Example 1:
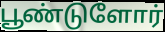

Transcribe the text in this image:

பூண்டுளோர்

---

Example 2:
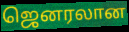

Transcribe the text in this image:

ஜெனரலான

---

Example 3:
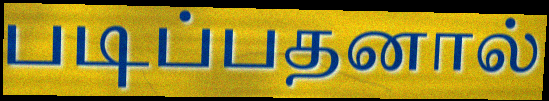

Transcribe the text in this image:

படிப்பதனால்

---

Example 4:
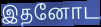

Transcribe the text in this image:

இதனோட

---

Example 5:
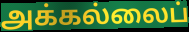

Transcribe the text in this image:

அக்கல்லைப்